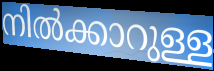
നിൽക്കാറുള്ള